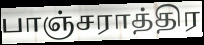
பாஞ்சராத்திர